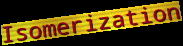
Isomerization